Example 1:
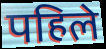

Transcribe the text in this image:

पहिले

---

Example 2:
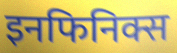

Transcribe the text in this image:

इनफिनिक्स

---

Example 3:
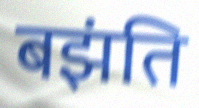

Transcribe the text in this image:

बझंति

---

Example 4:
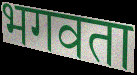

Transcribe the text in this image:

भगवता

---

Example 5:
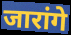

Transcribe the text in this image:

जारांगे